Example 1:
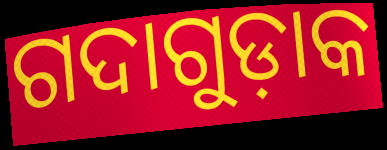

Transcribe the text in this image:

ଗଦାଗୁଡ଼ାକ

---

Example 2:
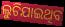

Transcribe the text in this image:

ଲୁଚିଯାଇଥିବ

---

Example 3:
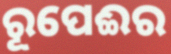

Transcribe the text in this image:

ରୂପେଈର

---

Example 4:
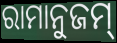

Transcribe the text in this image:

ରାମାନୁଜମ୍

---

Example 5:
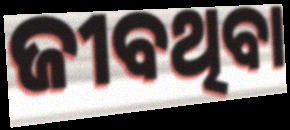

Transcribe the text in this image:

ଜୀବଥିବା